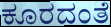
ಕೂರದಂತೆ